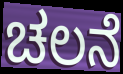
ಚಲನೆ